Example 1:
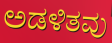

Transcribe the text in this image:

ಅಡಳಿತವು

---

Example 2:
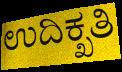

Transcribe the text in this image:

ಉದಿಕ್ಖತಿ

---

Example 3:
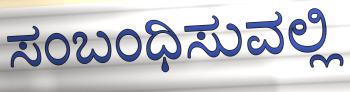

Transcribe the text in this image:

ಸಂಬಂಧಿಸುವಲ್ಲಿ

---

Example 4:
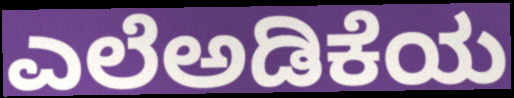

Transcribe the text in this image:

ಎಲೆಅಡಿಕೆಯ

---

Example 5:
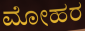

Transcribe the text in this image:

ಮೋಹರ